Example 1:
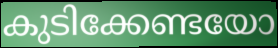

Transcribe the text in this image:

കുടിക്കേണ്ടയോ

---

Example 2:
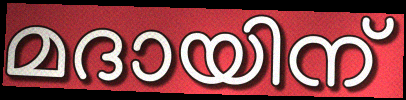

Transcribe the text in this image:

മദായിന്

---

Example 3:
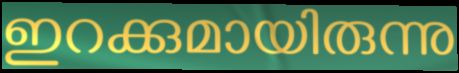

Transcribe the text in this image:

ഇറക്കുമായിരുന്നു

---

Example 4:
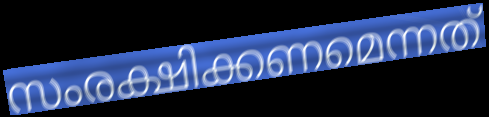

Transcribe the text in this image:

സംരക്ഷിക്കണമെന്നത്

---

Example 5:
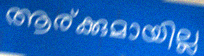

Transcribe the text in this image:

ആര്ക്കുമായില്ല